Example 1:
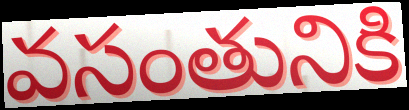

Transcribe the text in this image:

వసంతునికి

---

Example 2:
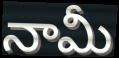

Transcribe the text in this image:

నామీ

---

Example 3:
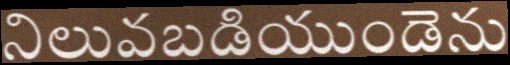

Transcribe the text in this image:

నిలువబడియుండెను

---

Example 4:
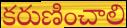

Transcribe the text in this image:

కరుణించాలి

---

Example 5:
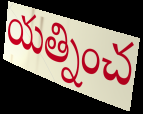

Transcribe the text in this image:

యత్నించ